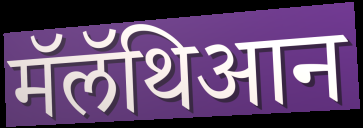
मॅलॅथिआन